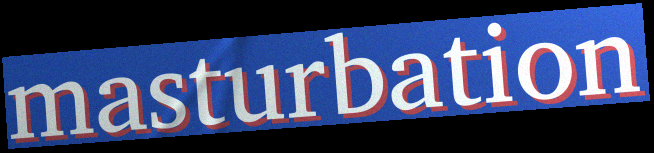
masturbation